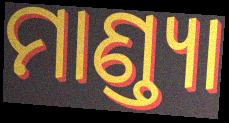
ମାଣ୍ଡ୍ୟା